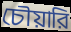
চৌয়ারি